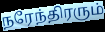
நரேந்திரரும்